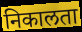
निकालता